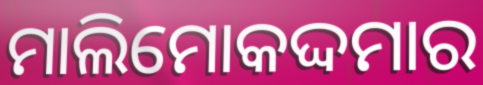
ମାଲିମୋକଦ୍ଦମାର